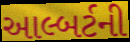
આલ્બર્ટની